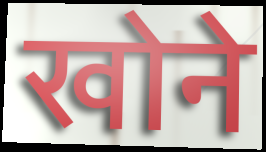
खोने